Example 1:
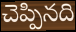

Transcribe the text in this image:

చెప్పినది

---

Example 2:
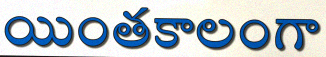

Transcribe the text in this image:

యింతకాలంగా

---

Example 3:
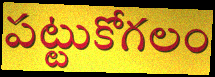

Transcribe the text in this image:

పట్టుకోగలం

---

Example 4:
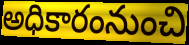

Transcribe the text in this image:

అధికారంనుంచి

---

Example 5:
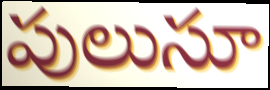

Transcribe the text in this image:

పులుసూ